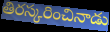
తిరస్కరించినాడు